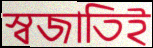
স্বজাতিই